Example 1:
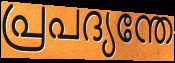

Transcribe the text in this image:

പ്രപദ്യന്തേ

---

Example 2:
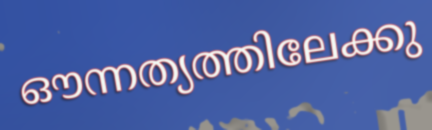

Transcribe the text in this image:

ഔന്നത്യത്തിലേക്കു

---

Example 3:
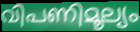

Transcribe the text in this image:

വിപണിമൂല്യം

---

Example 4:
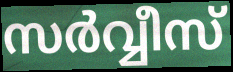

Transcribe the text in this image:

സർവ്വീസ്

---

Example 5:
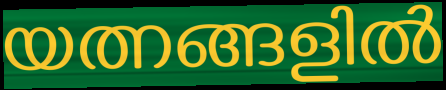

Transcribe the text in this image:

യത്നങ്ങളിൽ